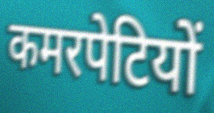
कमरपेटियों